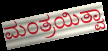
ಮಂತ್ರಯಿತ್ವಾ